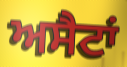
ਅਸੈਟਾਂ